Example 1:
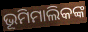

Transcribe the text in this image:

ଭୂମିମାଲିକଙ୍କ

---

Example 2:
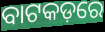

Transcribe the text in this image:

ବାଟକଡ଼ରେ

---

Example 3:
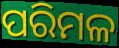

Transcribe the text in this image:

ପରିମଳ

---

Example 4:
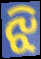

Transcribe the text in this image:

ଝି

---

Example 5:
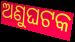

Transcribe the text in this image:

ଅଣୁଘଟକ